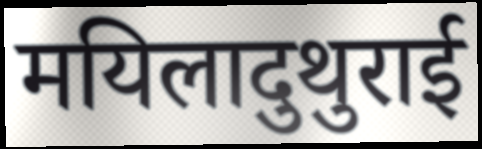
मयिलादुथुराई